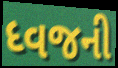
ધ્વજની